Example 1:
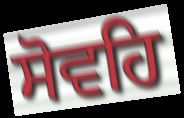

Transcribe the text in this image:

ਸੋਵਹਿ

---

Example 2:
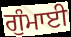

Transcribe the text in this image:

ਗੁੰਮਾਈ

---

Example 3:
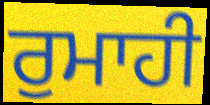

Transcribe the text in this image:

ਰੁਮਾਹੀ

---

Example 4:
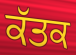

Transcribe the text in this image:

ਕੱਤਕ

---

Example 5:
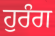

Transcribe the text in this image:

ਹੁਰੰਗ